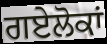
ਗਏਲੋਕਾਂ